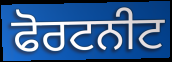
ਫੋਰਟਨੀਟ